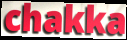
chakka